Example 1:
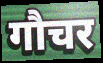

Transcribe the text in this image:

गौचर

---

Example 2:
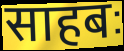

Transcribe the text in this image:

साहबः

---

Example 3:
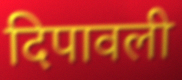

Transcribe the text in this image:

दिपावली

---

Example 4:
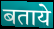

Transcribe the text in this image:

बताये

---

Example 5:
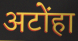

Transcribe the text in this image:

अटोंहा